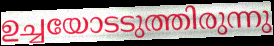
ഉച്ചയോടടുത്തിരുന്നു